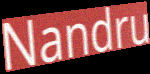
Nandru